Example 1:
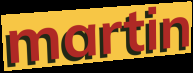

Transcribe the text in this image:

martin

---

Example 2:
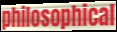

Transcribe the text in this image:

philosophical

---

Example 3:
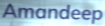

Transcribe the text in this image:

Amandeep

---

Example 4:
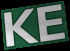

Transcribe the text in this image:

KE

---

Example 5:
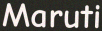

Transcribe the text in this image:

Maruti